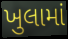
ખુલામાં